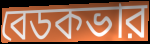
বেডকভার